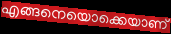
എങ്ങനെയൊക്കെയാണ്